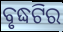
ବୃଦ୍ଧଟିର